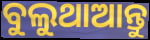
ବୁଲୁଥାଆନ୍ତୁ